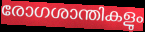
രോഗശാന്തികളും